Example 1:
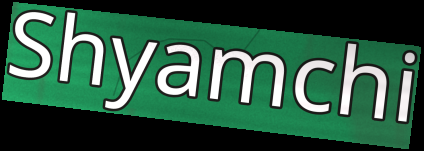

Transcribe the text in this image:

Shyamchi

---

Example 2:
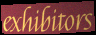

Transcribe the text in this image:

exhibitors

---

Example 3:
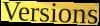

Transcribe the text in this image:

Versions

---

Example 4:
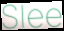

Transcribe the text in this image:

Slee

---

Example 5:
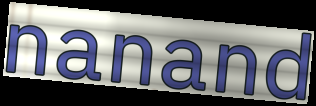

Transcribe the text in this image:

nanand